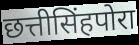
छत्तीसिंहपोरा